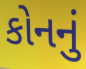
કોનનું